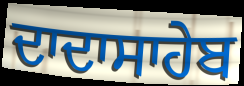
ਦਾਦਾਸਾਹੇਬ